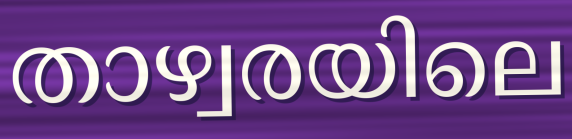
താഴ്വരയിലെ